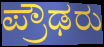
ಪ್ರೌಢರು